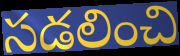
సడలించి